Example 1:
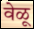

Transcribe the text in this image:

वेळू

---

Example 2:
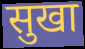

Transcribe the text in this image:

सुखा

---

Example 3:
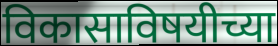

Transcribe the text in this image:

विकासाविषयीच्या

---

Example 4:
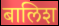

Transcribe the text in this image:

बालिश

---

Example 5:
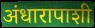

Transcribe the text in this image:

अंधारापाशी